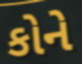
કોને